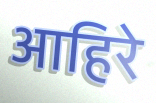
आहिरे